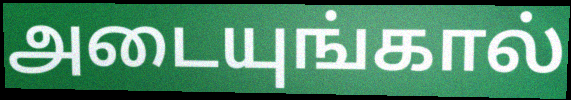
அடையுங்கால்